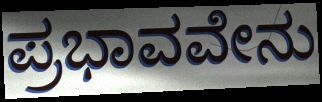
ಪ್ರಭಾವವೇನು